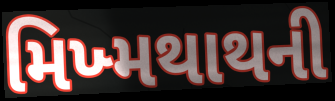
મિખ્મથાથની